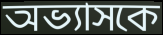
অভ্যাসকে